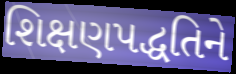
શિક્ષણપદ્ધતિને